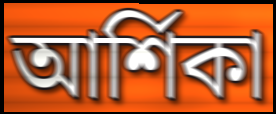
আর্শিকা